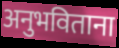
अनुभविताना